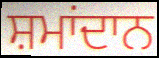
ਸ਼ਮਾਂਦਾਨ